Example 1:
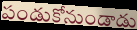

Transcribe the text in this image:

పండుకోనుండాడు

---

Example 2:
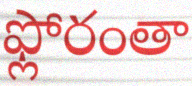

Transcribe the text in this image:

ఫ్లోరంతా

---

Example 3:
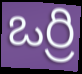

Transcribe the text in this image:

ఒర్రి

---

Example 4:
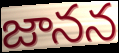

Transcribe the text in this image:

జానన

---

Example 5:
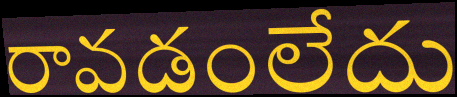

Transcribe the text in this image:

రావడంలేదు